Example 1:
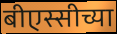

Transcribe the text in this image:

बीएस्सीच्या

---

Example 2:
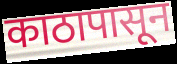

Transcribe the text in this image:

काठापासून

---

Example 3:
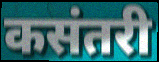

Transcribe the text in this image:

कसंतरी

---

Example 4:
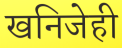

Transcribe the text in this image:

खनिजेही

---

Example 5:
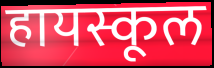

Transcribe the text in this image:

हायस्‍कूल